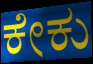
ಕೇಕು